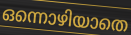
ഒന്നൊഴിയാതെ